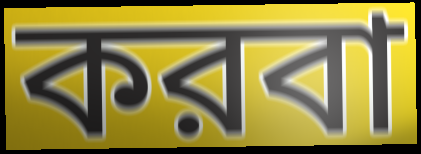
করবা